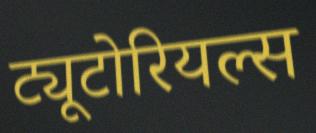
ट्यूटोरियल्स